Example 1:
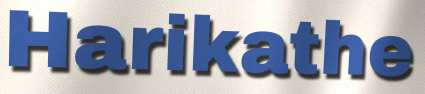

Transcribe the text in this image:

Harikathe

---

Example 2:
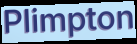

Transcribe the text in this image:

Plimpton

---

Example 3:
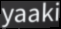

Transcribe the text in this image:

yaaki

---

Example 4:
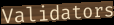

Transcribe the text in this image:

Validators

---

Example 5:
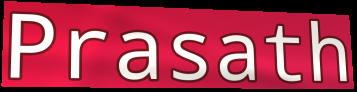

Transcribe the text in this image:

Prasath